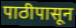
पाठीपासून